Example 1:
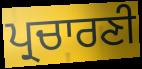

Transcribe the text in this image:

ਪ੍ਰਚਾਰਣੀ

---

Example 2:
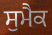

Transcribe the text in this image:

ਸੁਮੈਕ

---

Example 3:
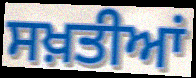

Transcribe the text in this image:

ਸਖ਼ਤੀਆਂ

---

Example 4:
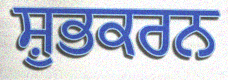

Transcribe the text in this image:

ਸ਼ੁਭਕਰਨ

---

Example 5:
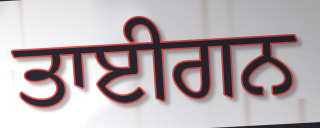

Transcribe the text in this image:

ਤਾਈਗਨ